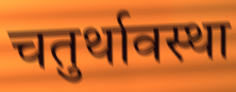
चतुर्थावस्था